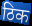
ठिक